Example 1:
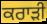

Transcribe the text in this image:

ਕਰਾੜੀ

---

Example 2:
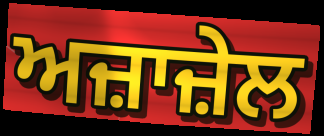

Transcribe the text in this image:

ਅਜ਼ਾਜ਼ੇਲ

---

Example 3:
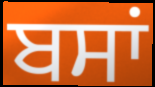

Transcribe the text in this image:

ਬਸਾਂ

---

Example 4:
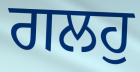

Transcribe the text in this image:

ਗਲਹੁ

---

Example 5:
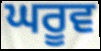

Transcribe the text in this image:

ਘਰੂਵ